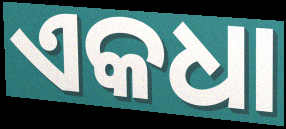
ଏକଧା